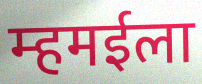
म्हमईला